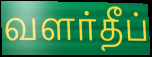
வளர்தீப்